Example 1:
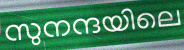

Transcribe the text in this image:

സുനന്ദയിലെ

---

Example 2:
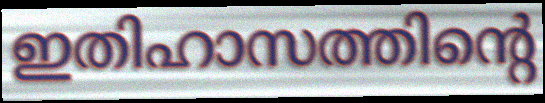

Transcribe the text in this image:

ഇതിഹാസത്തിന്റെ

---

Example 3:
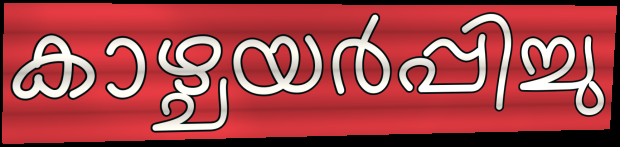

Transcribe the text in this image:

കാഴ്ചയർപ്പിച്ചു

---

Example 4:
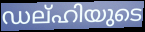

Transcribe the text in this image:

ഡല്ഹിയുടെ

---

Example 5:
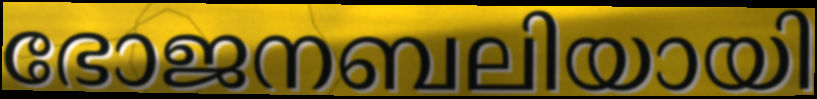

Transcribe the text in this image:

ഭോജനബലിയായി